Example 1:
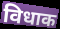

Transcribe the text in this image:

विधाक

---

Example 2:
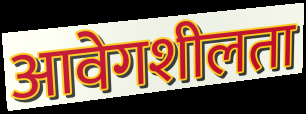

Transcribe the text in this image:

आवेगशीलता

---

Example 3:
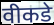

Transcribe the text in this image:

वीकडे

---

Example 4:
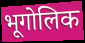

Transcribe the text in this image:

भूगोलिक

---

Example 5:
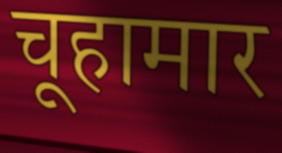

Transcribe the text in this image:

चूहामार